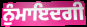
ਨੁੰਮਾਇਦਗੀ